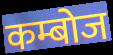
कम्बोज